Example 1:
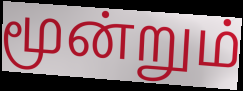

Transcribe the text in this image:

மூன்றும்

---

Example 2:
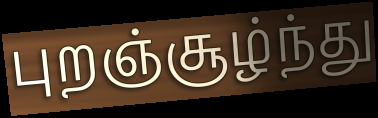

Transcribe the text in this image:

புறஞ்சூழ்ந்து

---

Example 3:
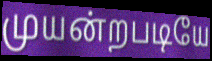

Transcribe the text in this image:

முயன்றபடியே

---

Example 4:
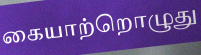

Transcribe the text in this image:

கையாற்றொழுது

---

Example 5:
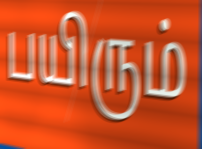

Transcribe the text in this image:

பயிரும்